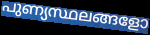
പുണ്യസ്ഥലങ്ങളോ